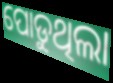
ପୋଡୁଥିଲା